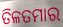
ତିଳତମାର